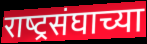
राष्ट्रसंघाच्या